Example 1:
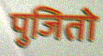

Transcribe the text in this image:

पुजितो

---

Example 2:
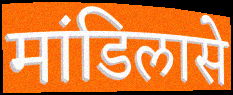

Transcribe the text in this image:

मांडिलासे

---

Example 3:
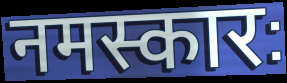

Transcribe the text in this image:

नमस्कारः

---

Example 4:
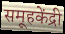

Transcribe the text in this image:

समूहकेंद्री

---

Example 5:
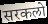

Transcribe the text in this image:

सरकलो